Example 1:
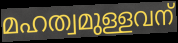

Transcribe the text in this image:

മഹത്വമുള്ളവന്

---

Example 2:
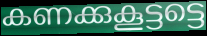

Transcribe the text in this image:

കണക്കുകൂട്ടട്ടെ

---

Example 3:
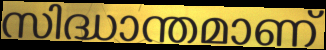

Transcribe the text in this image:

സിദ്ധാന്തമാണ്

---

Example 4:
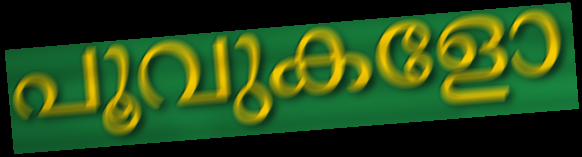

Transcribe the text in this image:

പൂവുകളോ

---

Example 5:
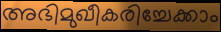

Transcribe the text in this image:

അഭിമുഖീകരിച്ചേക്കാം